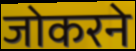
जोकरने